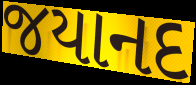
જયાનદ